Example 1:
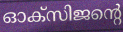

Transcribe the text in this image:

ഓക്സിജന്റെ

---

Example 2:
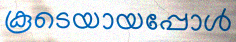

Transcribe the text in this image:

കൂടെയായപ്പോൾ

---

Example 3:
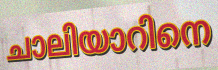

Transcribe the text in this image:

ചാലിയാറിനെ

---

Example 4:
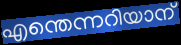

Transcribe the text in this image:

എന്തെന്നറിയാന്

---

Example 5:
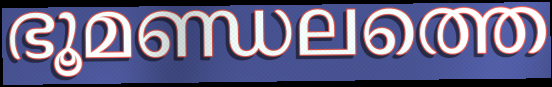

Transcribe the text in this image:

ഭൂമണ്ഡലത്തെ